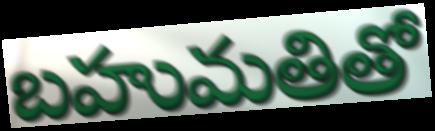
బహుమతితో